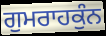
ਗੁਮਰਾਹਕੁੰਨ